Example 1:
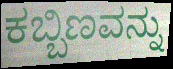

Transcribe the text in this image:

ಕಬ್ಬಿಣವನ್ನು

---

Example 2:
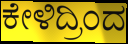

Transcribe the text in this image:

ಕೇಳಿದ್ರಿಂದ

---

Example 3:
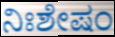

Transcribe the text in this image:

ನಿಃಶೇಷಂ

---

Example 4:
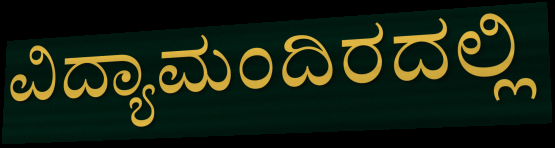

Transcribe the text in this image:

ವಿದ್ಯಾಮಂದಿರದಲ್ಲಿ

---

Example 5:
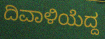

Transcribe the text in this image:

ದಿವಾಳಿಯೆದ್ದ